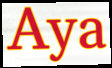
Aya